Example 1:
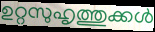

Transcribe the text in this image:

ഉറ്റസുഹൃത്തുക്കൾ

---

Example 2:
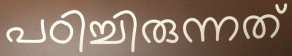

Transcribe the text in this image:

പഠിച്ചിരുന്നത്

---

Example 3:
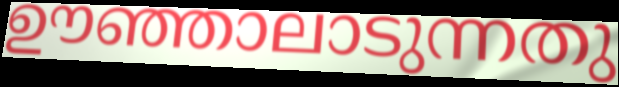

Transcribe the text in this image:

ഊഞ്ഞാലാടുന്നതു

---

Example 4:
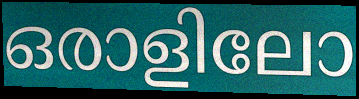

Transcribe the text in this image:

ഒരാളിലോ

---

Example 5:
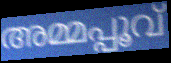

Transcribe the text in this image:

അമ്മപ്പൂവ്